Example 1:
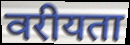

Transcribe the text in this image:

वरीयता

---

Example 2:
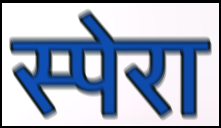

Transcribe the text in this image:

स्पेरा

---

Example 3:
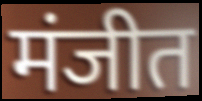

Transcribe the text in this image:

मंजीत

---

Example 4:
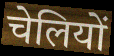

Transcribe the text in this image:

चेलियों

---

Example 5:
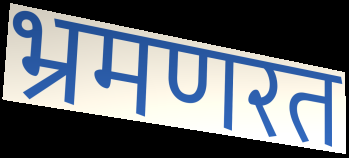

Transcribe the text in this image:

भ्रमणरत